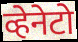
व्हेनेटो